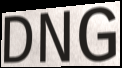
DNG